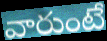
వారుంటే